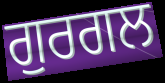
ਗੁਰਗਲ